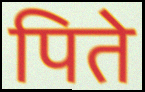
पिते